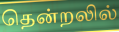
தென்றலில்